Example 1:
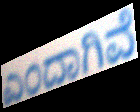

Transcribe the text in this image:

ಎಂದಾಗಿವೆ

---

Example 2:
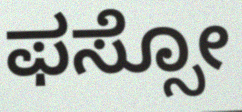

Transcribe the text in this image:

ಫಸ್ಸೋ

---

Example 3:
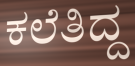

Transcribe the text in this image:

ಕಲೆತಿದ್ದ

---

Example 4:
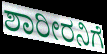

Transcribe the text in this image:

ಶಾರೀರನಿಗೆ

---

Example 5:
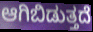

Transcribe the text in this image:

ಆಗಿಬಿಡುತ್ತದೆ